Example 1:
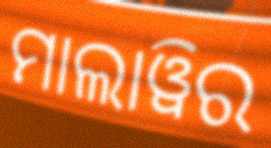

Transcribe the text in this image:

ମାଲାୱିର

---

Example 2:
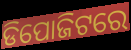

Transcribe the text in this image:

ଡିପୋଜିଟରେ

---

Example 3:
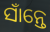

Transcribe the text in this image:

ସାଁନ୍ତେ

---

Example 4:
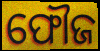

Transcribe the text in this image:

ଫୌଜ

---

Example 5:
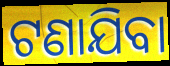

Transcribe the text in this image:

ଟଣାଯିବା